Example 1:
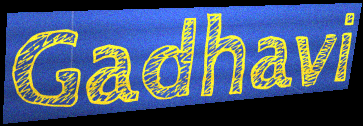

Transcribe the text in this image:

Gadhavi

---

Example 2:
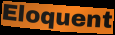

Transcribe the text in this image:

Eloquent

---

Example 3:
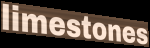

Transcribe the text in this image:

limestones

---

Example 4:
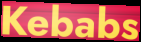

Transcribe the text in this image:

Kebabs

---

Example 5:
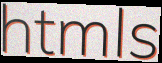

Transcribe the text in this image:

htmls